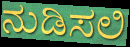
ನುಡಿಸಲಿ